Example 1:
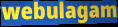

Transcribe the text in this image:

webulagam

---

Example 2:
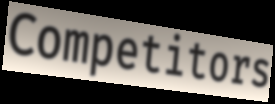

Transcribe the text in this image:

Competitors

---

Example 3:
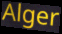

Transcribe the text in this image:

Alger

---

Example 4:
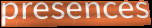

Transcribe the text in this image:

presences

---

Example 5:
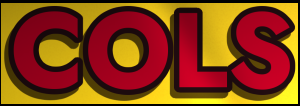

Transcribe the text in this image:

COLS